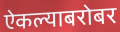
ऐकल्याबरोबर